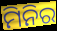
ମିନିର